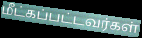
மீட்கப்பட்டவர்கள்